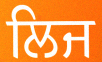
ਲਿਜ